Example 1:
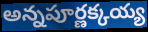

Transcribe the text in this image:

అన్నపూర్ణక్కయ్య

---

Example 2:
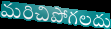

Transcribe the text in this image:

మరిచిపోగలదు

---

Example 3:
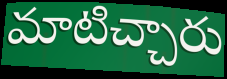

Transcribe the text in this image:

మాటిచ్చారు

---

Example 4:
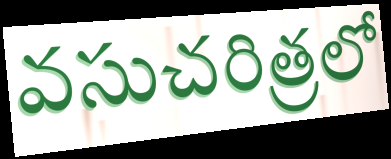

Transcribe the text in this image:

వసుచరిత్రలో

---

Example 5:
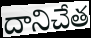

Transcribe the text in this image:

దానిచేత